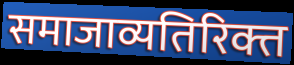
समाजाव्यतिरिक्त